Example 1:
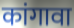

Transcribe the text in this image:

कांगावा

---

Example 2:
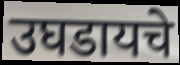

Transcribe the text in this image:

उघडायचे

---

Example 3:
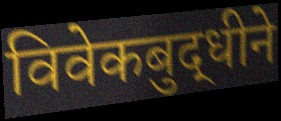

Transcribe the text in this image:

विवेकबुद्धीने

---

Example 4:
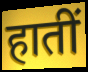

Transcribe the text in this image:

हातीं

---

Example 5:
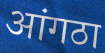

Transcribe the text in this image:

आंगठा